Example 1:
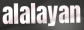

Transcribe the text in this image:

alalayan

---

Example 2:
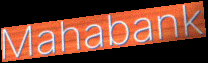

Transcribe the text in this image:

Mahabank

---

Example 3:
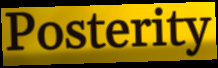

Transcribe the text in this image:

Posterity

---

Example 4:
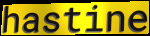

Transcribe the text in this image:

hastine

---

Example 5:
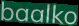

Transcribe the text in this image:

baalko